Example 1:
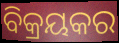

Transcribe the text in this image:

ବିକ୍ରୟକର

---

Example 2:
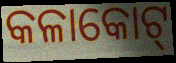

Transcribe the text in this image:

କଳାକୋଟ୍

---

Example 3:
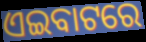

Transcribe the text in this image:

ଏଇବାଟରେ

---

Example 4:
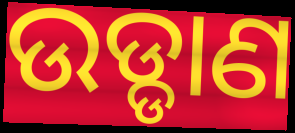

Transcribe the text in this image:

ଉଡ୍ଡାଣ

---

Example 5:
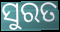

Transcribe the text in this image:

ସୁରତ